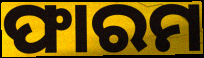
ଫାରମ